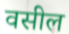
वसील